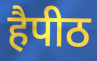
हैपीठ